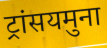
ट्रांसयमुना